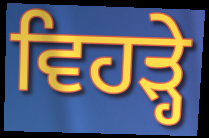
ਵਿਹੜ੍ਹੇ